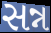
સન્ન